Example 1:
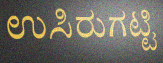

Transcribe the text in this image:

ಉಸಿರುಗಟ್ಟಿ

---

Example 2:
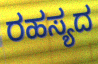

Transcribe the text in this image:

ರಹಸ್ಯದ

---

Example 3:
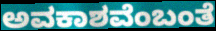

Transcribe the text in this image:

ಅವಕಾಶವೆಂಬಂತೆ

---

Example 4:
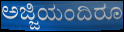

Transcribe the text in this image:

ಅಜ್ಜಿಯಂದಿರೂ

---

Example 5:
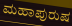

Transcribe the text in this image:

ಮಹಾಪುರುಷ